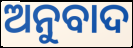
ଅନୁବାଦ